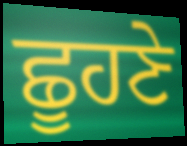
ਛੂਹਣੇ